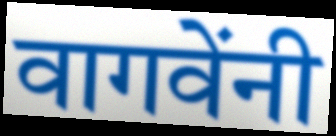
वागवेंनी